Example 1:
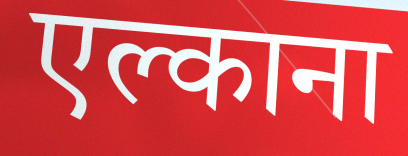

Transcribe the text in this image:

एल्काना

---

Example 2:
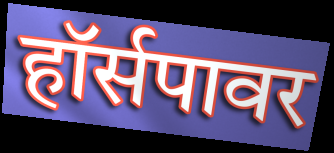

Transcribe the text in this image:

हॉर्सपावर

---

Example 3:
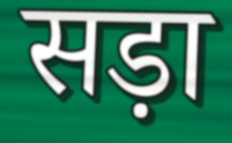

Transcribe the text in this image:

सड़ा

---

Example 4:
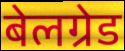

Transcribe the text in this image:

बेलग्रेड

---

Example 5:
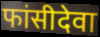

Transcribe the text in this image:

फांसीदेवा